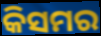
କିସମର